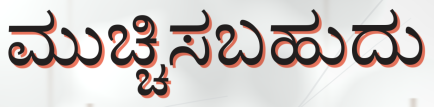
ಮುಚ್ಚಿಸಬಹುದು